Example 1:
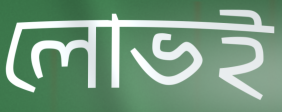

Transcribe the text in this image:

লোভই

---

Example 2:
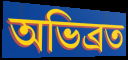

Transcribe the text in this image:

অভিব্রত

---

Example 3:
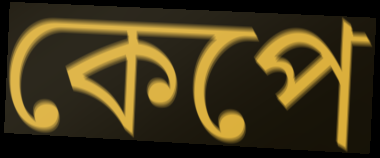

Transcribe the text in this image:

কেপে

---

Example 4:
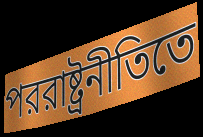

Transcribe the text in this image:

পররাষ্ট্রনীতিতে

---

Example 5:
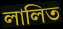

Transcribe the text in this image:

লালিত